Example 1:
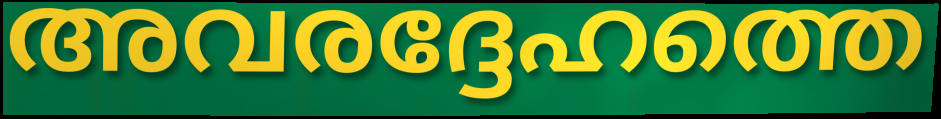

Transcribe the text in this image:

അവരദ്ദേഹത്തെ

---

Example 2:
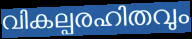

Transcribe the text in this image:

വികല്പരഹിതവും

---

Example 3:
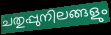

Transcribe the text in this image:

ചതുപ്പുനിലങ്ങളും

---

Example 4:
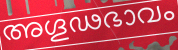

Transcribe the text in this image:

അഗൂഢഭാവം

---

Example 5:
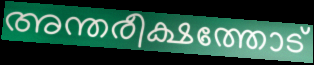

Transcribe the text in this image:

അന്തരീക്ഷത്തോട്